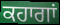
ਕਹਾਗਾਂ